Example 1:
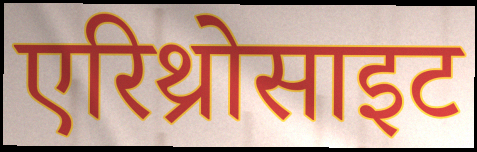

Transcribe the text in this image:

एरिथ्रोसाइट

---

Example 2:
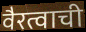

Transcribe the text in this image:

वैरत्वाची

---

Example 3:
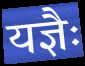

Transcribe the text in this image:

यज्ञैः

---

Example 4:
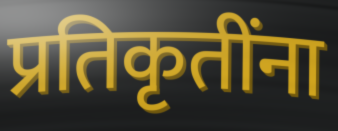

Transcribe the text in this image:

प्रतिकृतींना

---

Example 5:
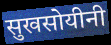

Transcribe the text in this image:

सुखसोयीनी